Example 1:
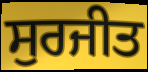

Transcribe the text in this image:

ਸੁਰਜੀਤ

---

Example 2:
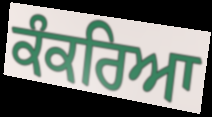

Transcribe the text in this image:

ਕੰਕਰਿਆ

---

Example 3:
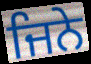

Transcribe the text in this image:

ਜਿਨੇ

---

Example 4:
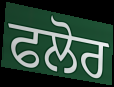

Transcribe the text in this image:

ਫਲੋਰ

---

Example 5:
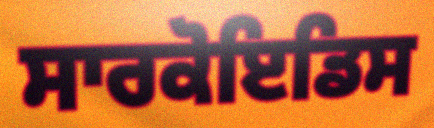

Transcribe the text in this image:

ਸਾਰਕੋਇਡਿਸ